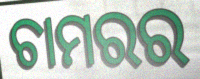
ଚାମରର